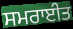
ਸਮਰਾਈਤ